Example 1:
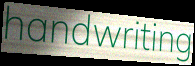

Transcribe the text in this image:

handwriting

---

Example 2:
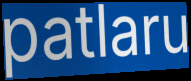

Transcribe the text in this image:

patlaru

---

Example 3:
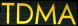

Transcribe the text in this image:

TDMA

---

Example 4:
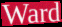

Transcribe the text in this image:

Ward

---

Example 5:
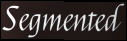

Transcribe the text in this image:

Segmented